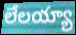
లేలయ్యా